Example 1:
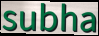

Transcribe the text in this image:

subha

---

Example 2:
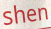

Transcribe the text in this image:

shen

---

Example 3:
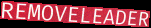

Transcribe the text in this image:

REMOVELEADER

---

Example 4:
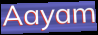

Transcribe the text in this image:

Aayam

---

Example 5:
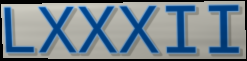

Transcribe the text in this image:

LXXXII